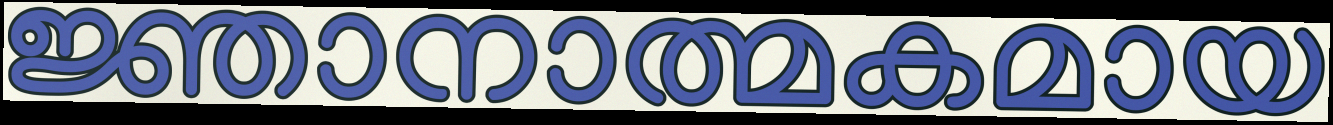
ജ്ഞാനാത്മകമായ